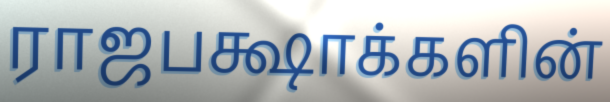
ராஜபக்ஷாக்களின்